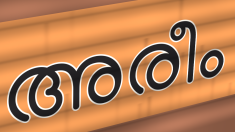
അരീം